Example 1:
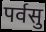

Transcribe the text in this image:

पर्वसु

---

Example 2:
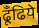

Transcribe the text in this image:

ढूँढिये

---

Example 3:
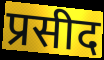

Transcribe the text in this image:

प्रसीद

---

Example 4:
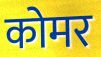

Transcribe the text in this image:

कोमर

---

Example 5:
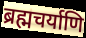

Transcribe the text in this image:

ब्रह्मचर्याणि